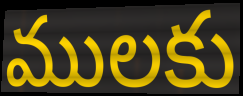
ములకు